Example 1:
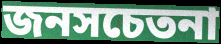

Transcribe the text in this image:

জনসচেতনা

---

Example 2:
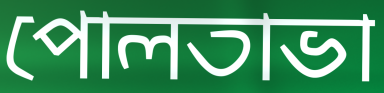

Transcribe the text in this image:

পোলতাভা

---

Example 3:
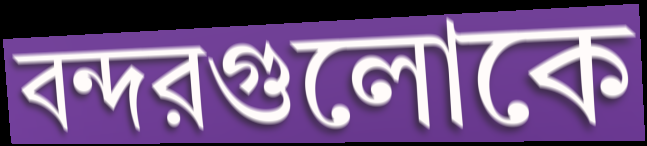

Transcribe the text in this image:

বন্দরগুলোকে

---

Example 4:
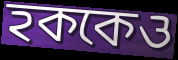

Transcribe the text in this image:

হককেও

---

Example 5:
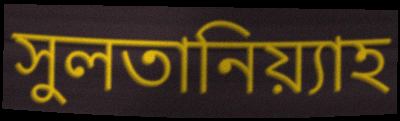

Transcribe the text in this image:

সুলতানিয়্যাহ